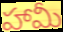
హామీ